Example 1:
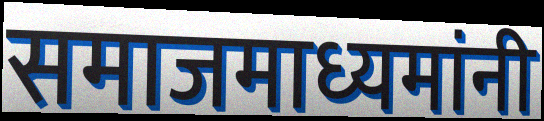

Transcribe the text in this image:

समाजमाध्यमांनी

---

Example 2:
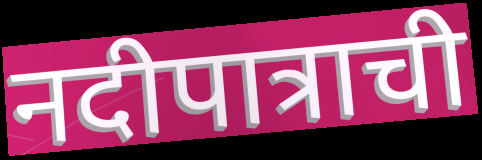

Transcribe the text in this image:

नदीपात्राची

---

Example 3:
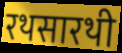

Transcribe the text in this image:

रथसारथी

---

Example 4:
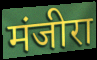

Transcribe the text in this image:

मंजीरा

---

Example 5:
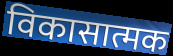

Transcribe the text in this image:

विकासात्मक